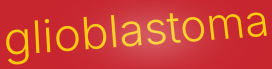
glioblastoma